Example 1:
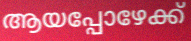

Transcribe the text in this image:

ആയപ്പോഴേക്ക്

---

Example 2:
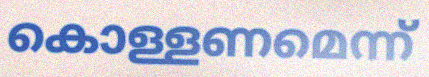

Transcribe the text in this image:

കൊള്ളണമെന്ന്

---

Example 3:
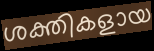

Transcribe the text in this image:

ശക്തികളായ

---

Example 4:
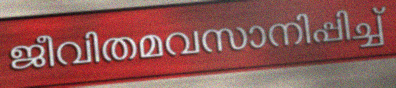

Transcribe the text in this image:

ജീവിതമവസാനിപ്പിച്ച്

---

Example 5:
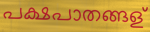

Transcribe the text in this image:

പക്ഷപാതങ്ങള്